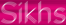
Sikhs